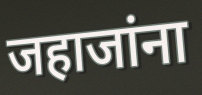
जहाजांना